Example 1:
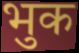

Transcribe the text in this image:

भुक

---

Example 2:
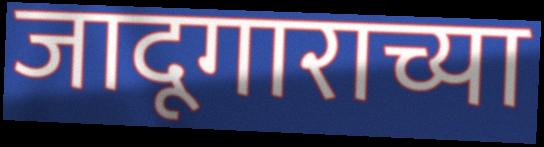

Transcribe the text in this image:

जादूगाराच्या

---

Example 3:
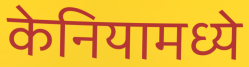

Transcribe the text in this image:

केनियामध्ये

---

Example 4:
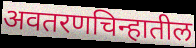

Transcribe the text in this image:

अवतरणचिन्हातील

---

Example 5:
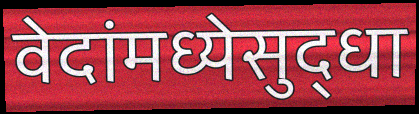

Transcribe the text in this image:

वेदांमध्येसुद्धा